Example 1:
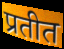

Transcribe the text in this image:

प्रतीत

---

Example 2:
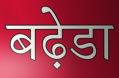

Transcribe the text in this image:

बढ़ेडा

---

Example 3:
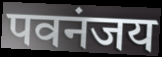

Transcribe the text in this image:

पवनंजय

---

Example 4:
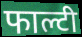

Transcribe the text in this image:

फाल्टी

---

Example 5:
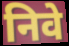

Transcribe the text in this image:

निवे